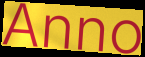
Anno